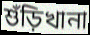
শুঁড়িখানা